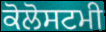
ਕੋਲੋਸਟਮੀ